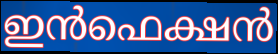
ഇൻഫെക്ഷൻ